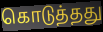
கொடுத்தது